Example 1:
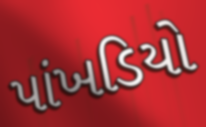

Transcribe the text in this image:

પાંખડિયો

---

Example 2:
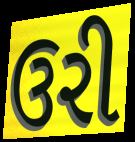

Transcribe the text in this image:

ઉરી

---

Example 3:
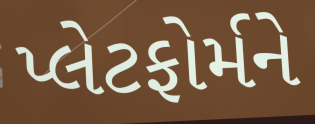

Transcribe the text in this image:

પ્લેટફોર્મને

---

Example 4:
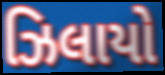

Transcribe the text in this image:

ઝિલાયો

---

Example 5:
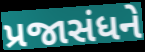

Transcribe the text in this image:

પ્રજાસંધને